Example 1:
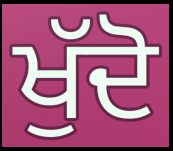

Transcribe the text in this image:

ਖੁੱਦੋ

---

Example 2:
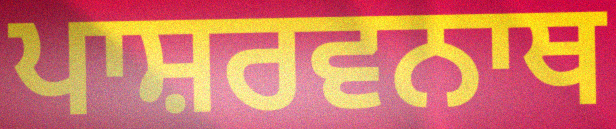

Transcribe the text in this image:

ਪਾਸ਼ਰਵਨਾਥ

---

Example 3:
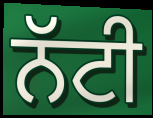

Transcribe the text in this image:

ਨੱਟੀ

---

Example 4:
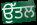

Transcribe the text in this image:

ਉੱਤਲ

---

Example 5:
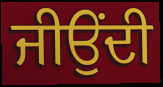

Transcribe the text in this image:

ਜੀਉਂਦੀ